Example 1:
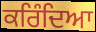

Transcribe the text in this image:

ਕਰਿੰਦਿਆ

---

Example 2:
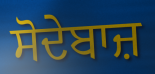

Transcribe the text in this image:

ਸੋਦੇਬਾਜ਼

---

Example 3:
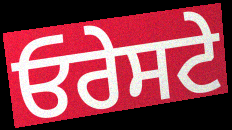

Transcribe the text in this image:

ਓਰੇਸਟੇ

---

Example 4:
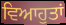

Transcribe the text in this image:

ਵਿਆਹੁਤਾਂ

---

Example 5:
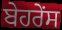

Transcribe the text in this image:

ਬੇਹਰੇਂਸ